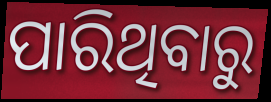
ପାରିଥିବାରୁ